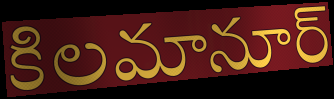
కిలమానూర్